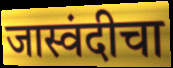
जास्वंदीचा